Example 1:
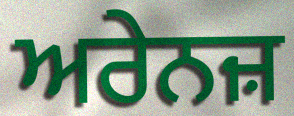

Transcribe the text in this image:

ਅਰੇਨਜ਼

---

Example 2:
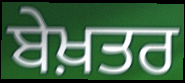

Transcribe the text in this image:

ਬੇਖ਼ਤਰ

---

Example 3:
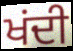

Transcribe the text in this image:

ਖਂਦੀ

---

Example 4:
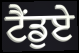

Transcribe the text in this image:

ਟੈਂਡੁਏ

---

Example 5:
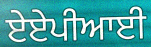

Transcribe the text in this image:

ਏਏਪੀਆਈ